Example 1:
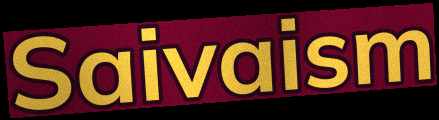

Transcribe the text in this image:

Saivaism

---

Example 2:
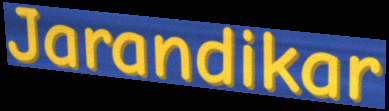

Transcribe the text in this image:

Jarandikar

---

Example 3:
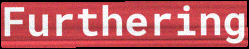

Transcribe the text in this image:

Furthering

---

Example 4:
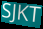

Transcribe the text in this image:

SJKT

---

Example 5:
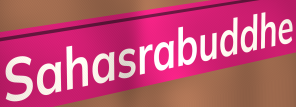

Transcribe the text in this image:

Sahasrabuddhe